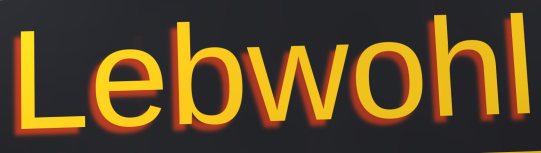
Lebwohl